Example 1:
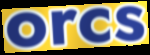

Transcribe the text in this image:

orcs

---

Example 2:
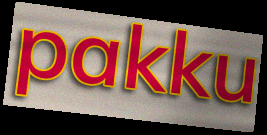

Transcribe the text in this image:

pakku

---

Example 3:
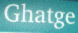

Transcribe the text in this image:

Ghatge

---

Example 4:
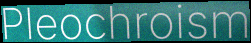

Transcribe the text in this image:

Pleochroism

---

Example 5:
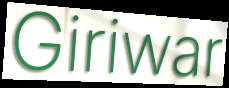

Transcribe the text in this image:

Giriwar